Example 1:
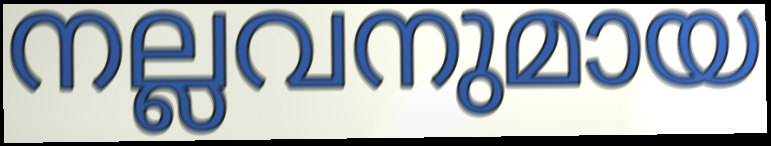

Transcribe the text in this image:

നല്ലവനുമായ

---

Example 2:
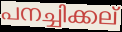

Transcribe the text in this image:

പനച്ചിക്കല്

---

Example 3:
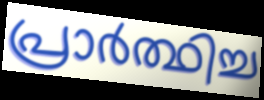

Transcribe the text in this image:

പ്രാർത്ഥിച്ച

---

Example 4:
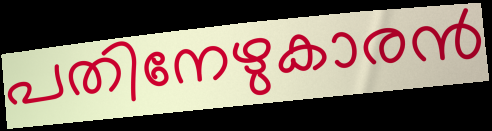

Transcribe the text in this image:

പതിനേഴുകാരൻ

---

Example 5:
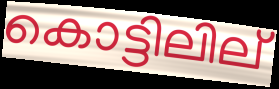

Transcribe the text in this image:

കൊട്ടിലില്